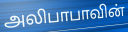
அலிபாபாவின்